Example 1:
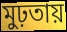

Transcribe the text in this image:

মুঢ়তায়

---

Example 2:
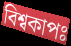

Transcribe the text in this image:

বিশ্বকাপঃ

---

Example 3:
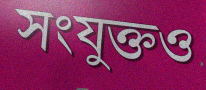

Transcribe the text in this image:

সংযুক্তও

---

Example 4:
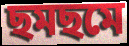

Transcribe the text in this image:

ছমছমে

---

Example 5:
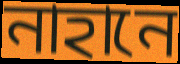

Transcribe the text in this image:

নাহানে